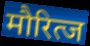
मौरित्ज